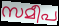
സമീപ